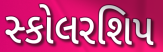
સ્કોલરશિપ